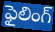
ఫైలింగ్